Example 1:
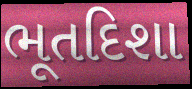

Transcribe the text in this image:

ભૂતદિશા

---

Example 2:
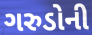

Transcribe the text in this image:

ગરુડોની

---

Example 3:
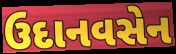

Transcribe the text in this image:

ઉદાનવસેન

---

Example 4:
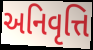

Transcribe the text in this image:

અનિવૃત્તિ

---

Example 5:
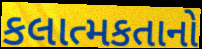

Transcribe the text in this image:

કલાત્મકતાનો